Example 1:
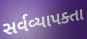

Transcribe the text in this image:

સર્વવ્યાપક્તા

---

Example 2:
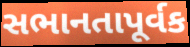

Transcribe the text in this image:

સભાનતાપૂર્વક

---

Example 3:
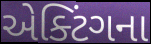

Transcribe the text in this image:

એક્ટિંગના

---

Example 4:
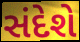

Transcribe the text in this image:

સંદેશે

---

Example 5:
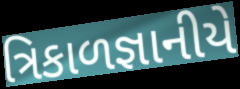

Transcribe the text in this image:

ત્રિકાળજ્ઞાનીયે